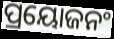
ପ୍ରୟୋଜନଂ